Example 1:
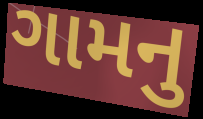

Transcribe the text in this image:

ગામનુ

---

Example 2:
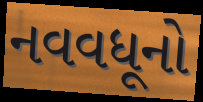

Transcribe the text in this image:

નવવધૂનો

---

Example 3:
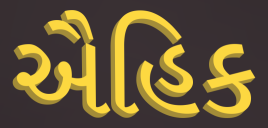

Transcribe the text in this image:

ઐહિક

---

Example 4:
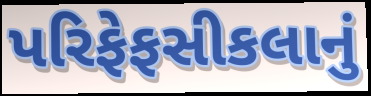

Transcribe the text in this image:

પરિફેફસીકલાનું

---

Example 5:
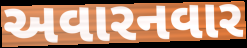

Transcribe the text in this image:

અવારનવાર